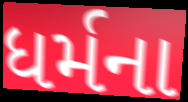
ધર્મના